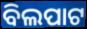
ବିଲପାଟ